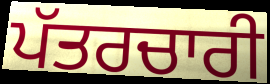
ਪੱਤਰਚਾਰੀ